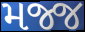
મજ્જ